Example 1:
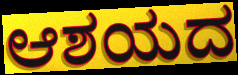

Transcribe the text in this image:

ಆಶಯದ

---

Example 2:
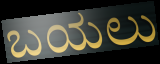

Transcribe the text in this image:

ಬಯಲು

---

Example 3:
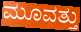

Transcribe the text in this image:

ಮೂವತ್ತು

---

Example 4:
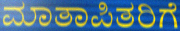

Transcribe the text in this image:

ಮಾತಾಪಿತರಿಗೆ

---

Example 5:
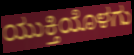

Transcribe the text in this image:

ಯುಕ್ತಿಯೊಳಗು